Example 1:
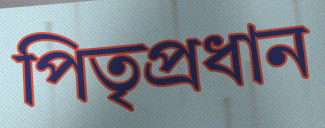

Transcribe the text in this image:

পিতৃপ্রধান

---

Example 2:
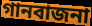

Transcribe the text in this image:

গানবাজনা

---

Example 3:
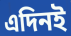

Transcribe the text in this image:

এদিনই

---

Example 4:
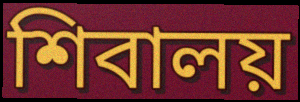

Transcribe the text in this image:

শিবালয়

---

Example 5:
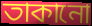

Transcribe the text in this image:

তাকানো